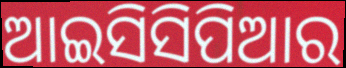
ଆଇସିସିପିଆର